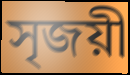
সৃজয়ী